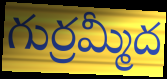
గుర్రమ్మీద